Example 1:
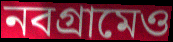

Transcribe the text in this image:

নবগ্রামেও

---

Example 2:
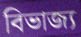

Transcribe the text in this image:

বিভাজ্য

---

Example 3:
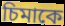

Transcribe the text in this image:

চিমাকে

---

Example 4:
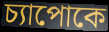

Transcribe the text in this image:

চ্যাপোকে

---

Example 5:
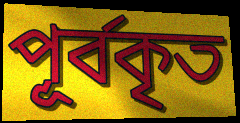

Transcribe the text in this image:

পূর্বকৃত